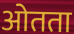
ओतता